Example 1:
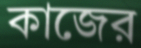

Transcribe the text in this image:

কাজের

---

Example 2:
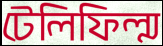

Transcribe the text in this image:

টেলিফিল্ম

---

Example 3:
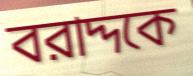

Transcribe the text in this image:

বরাদ্দকে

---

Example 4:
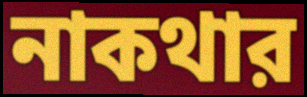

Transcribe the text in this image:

নাকথার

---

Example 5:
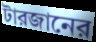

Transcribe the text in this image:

টারজানের